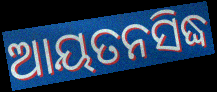
ଆୟତନସିଦ୍ଧ